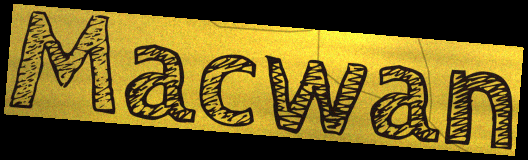
Macwan